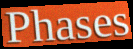
Phases